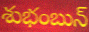
శుభంబున్